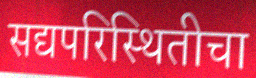
सद्यपरिस्थितीचा